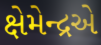
ક્ષેમેન્દ્રએ